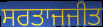
ਸਰਤਾਜਜੀਤ